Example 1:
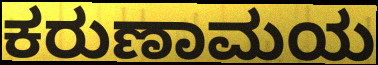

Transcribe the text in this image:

ಕರುಣಾಮಯ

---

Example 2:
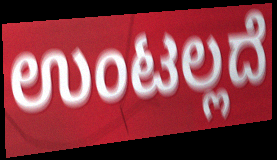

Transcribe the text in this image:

ಉಂಟಲ್ಲದೆ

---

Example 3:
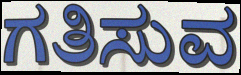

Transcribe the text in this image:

ಗತಿಸುವ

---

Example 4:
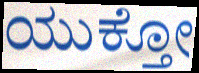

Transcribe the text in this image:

ಯುಕ್ತೋ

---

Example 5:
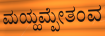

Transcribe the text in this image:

ಮಯ್ಹಮ್ಪೇತಂವ